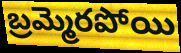
బ్రమ్మెరపోయి